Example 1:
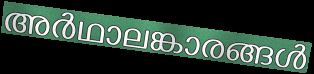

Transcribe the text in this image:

അർഥാലങ്കാരങ്ങൾ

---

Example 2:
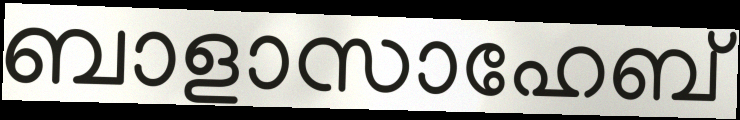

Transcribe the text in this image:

ബാളാസാഹേബ്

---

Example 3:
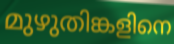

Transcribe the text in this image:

മുഴുതിങ്കളിനെ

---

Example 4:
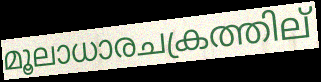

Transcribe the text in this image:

മൂലാധാരചക്രത്തില്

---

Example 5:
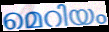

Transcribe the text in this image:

മെറിയം